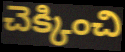
చెక్కించి